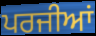
ਪਰਜੀਆਂ